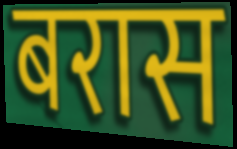
बरास